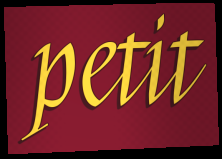
petit